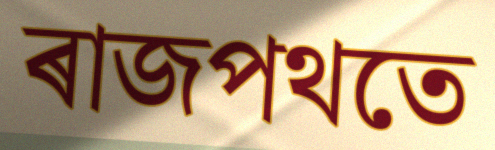
ৰাজপথতে